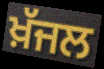
ਖ਼ੱਜਲ